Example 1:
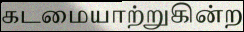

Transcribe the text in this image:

கடமையாற்றுகின்ற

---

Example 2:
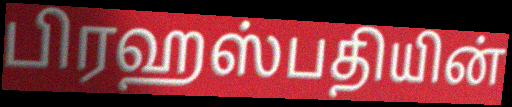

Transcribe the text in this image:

பிரஹஸ்பதியின்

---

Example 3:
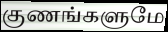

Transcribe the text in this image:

குணங்களுமே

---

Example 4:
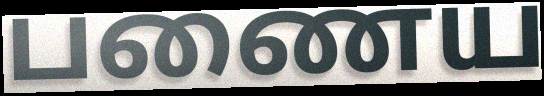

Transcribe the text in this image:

பணைய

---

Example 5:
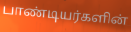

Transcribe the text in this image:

பாண்டியர்களின்